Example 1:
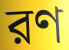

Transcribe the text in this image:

রণ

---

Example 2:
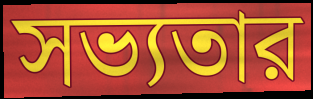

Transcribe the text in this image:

সভ্যতার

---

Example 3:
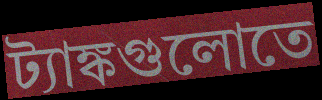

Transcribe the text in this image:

ট্যাঙ্কগুলোতে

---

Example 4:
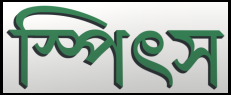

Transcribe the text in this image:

স্পিৎস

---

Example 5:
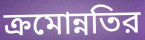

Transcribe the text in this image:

ক্রমোন্নতির